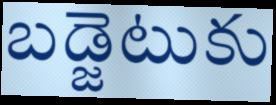
బడ్జెటుకు